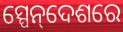
ସ୍ପେନ୍‌ଦେଶରେ